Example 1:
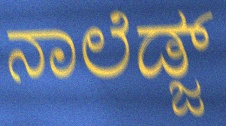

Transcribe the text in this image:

ನಾಲೆಡ್ಜ್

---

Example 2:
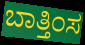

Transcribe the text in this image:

ಬಾತ್ತಿಂಸ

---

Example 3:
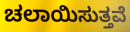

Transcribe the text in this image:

ಚಲಾಯಿಸುತ್ತವೆ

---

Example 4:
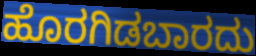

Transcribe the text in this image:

ಹೊರಗಿಡಬಾರದು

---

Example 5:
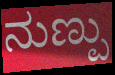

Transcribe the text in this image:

ನುಣ್ಪು